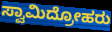
ಸ್ವಾಮಿದ್ರೋಹರು